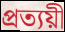
প্রত্যয়ী